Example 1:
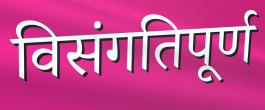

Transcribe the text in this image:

विसंगतिपूर्ण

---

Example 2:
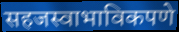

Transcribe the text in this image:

सहजस्वाभाविकपणे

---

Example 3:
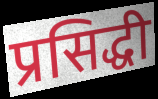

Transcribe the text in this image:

प्रसिद्धी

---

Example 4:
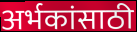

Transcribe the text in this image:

अर्भकांसाठी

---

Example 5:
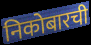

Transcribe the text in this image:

निकोबारची